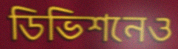
ডিভিশনেও